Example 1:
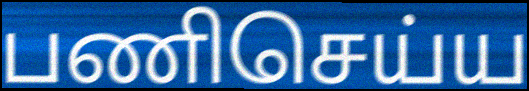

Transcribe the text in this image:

பணிசெய்ய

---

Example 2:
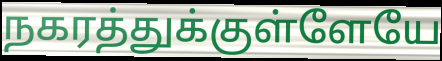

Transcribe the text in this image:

நகரத்துக்குள்ளேயே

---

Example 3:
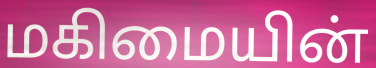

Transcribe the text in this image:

மகிமையின்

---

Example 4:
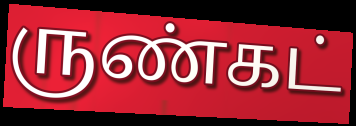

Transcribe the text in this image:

ருண்கட்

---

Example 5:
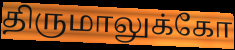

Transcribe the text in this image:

திருமாலுக்கோ